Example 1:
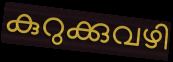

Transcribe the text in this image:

കുറുക്കുവഴി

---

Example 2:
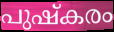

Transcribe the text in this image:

പുഷ്കരം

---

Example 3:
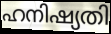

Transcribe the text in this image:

ഹനിഷ്യതി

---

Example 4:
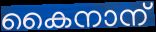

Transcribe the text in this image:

കൈനാന്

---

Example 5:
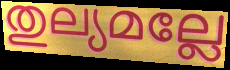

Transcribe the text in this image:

തുല്യമല്ലേ